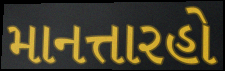
માનત્તારહો